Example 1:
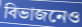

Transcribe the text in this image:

বিভাজনেও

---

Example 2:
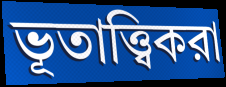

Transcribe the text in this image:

ভূতাত্ত্বিকরা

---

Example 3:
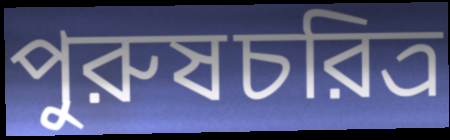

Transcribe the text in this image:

পুরুষচরিত্র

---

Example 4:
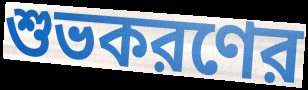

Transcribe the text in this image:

শুভকরণের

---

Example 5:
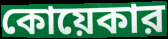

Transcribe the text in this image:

কোয়েকার